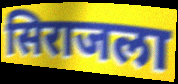
सिराजला